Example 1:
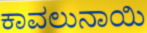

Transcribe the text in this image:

ಕಾವಲುನಾಯಿ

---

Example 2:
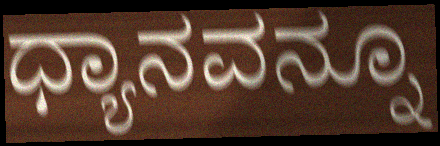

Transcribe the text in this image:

ಧ್ಯಾನವನ್ನೂ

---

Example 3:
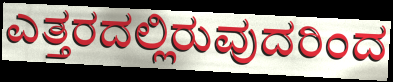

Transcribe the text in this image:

ಎತ್ತರದಲ್ಲಿರುವುದರಿಂದ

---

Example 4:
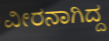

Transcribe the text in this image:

ವೀರನಾಗಿದ್ದ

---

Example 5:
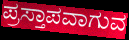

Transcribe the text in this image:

ಪ್ರಸ್ತಾಪವಾಗುವ